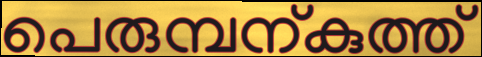
പെരുമ്പന്കുത്ത്